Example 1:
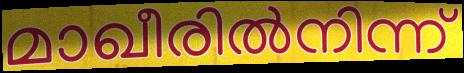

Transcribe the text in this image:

മാഖീരിൽനിന്ന്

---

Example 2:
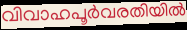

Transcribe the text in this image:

വിവാഹപൂർവരതിയിൽ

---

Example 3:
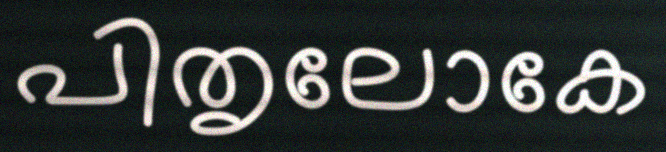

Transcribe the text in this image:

പിതൃലോകേ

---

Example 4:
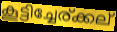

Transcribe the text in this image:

കൂട്ടിച്ചേര്ക്കല്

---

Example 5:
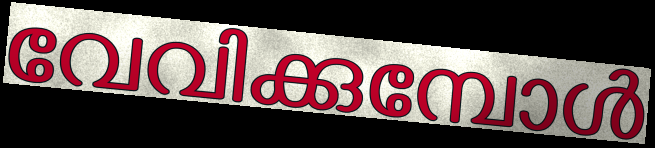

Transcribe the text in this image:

വേവിക്കുമ്പോൾ